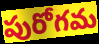
పురోగమ